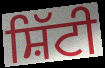
ਸ਼ਿੱਟੀ